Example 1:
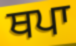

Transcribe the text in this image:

ਥਪਾ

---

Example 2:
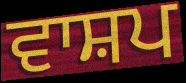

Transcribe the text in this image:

ਵਾਸ਼ਪ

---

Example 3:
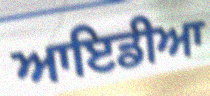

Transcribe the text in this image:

ਆਇਡੀਆ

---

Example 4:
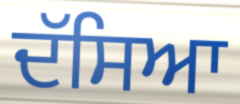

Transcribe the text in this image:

ਦੱਸਿਆ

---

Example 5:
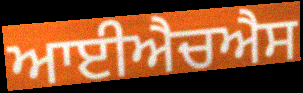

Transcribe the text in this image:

ਆਈਐਚਐਸ